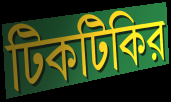
টিকটিকির